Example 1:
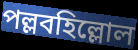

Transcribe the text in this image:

পল্লবহিল্লোল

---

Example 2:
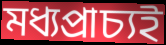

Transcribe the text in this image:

মধ্যপ্রাচ্যই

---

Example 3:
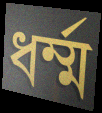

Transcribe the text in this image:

ধর্ম্ম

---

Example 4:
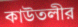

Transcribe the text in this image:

কাউতলীর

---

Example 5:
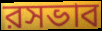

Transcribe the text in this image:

রসভাব